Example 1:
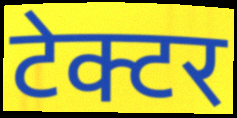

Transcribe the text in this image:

टेक्टर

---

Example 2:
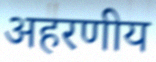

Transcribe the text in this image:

अहरणीय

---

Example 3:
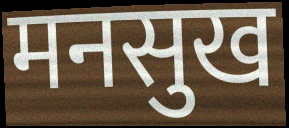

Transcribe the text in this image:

मनसुख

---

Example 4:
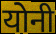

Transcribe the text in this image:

योनी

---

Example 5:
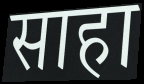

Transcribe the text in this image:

साहा